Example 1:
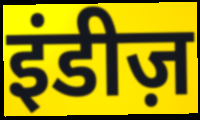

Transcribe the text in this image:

इंडीज़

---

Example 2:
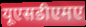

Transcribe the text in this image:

यूएसडीएमए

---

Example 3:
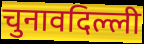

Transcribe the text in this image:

चुनावदिल्ली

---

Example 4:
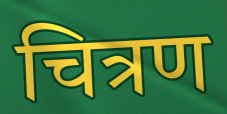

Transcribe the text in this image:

चित्रण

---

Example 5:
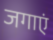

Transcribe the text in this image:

जगाएं